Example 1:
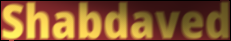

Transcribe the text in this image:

Shabdaved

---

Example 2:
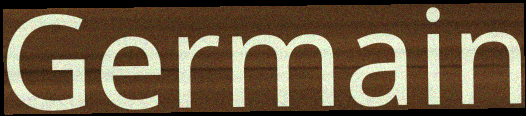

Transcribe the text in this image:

Germain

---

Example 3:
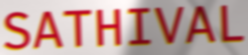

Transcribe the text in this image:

SATHIVAL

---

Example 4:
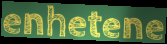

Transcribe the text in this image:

enhetene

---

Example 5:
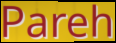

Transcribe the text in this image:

Pareh